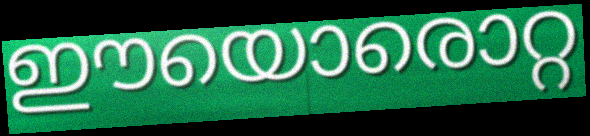
ഈയൊരൊറ്റ